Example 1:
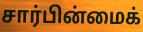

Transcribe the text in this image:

சார்பின்மைக்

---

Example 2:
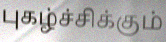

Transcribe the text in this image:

புகழ்ச்சிக்கும்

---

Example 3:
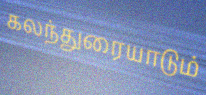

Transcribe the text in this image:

கலந்துரையாடும்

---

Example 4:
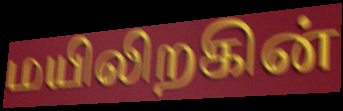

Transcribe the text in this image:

மயிலிறகின்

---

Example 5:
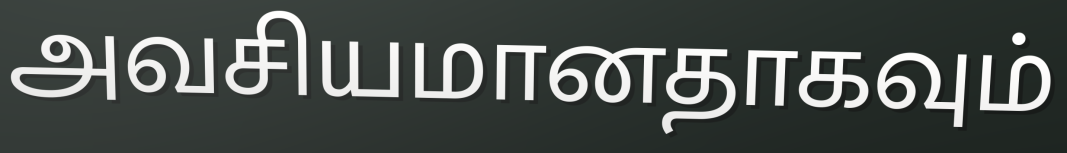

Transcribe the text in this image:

அவசியமானதாகவும்